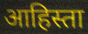
आहिस्ता